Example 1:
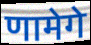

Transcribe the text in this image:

णामेगे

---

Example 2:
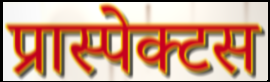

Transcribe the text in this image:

प्रास्पेक्टस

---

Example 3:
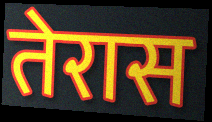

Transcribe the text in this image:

तेरास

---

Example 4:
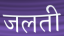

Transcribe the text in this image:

जलती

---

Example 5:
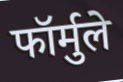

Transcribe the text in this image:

फॉर्मुले